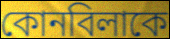
কোনবিলাকে